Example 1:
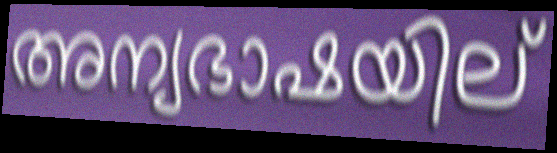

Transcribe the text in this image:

അന്യഭാഷയില്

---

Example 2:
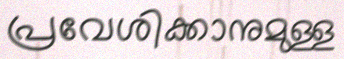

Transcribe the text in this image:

പ്രവേശിക്കാനുമുള്ള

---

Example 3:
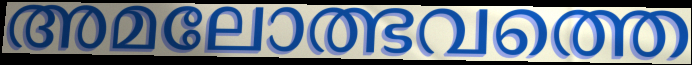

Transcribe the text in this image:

അമലോത്ഭവത്തെ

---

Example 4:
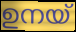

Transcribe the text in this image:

ഉനയ്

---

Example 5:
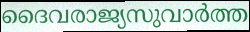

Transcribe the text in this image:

ദൈവരാജ്യസുവാർത്ത